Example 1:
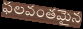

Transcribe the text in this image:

ఫలవంతమైన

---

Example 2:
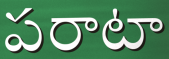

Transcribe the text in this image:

పరాటా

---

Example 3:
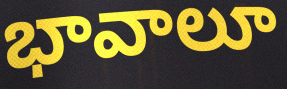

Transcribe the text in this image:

భావాలూ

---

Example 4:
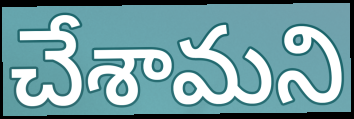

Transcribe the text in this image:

చేశామని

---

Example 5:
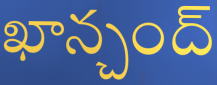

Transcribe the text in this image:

ఖాన్చంద్